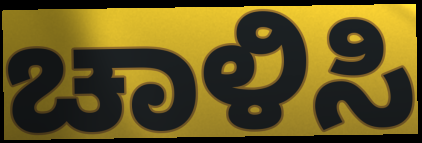
ಚಾಳಿಸಿ